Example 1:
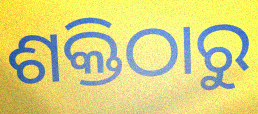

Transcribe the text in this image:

ଶକ୍ତିଠାରୁ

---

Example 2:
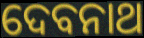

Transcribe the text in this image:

ଦେବନାଥ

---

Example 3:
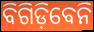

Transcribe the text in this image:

ବିଗିଡ଼ିବେନି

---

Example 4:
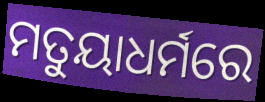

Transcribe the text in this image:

ମତୁୟାଧର୍ମରେ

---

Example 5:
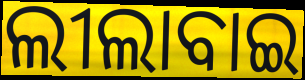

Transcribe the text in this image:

ଲୀଲାବାଇ